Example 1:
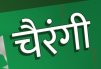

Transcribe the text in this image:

चैरंगी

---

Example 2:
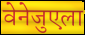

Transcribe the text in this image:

वेनेजुएला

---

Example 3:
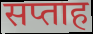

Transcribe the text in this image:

सप्ताह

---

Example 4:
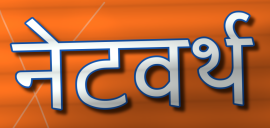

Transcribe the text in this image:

नेटवर्थ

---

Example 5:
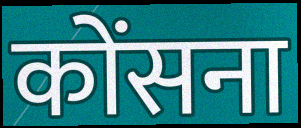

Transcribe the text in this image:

कोंसना